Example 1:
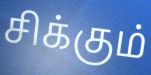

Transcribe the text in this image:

சிக்கும்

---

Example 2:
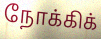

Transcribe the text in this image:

நோக்கிக்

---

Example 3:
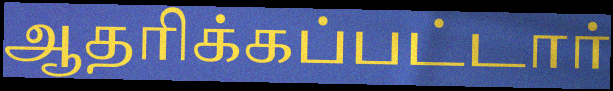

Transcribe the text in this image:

ஆதரிக்கப்பட்டார்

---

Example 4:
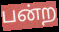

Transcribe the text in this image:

பன்ற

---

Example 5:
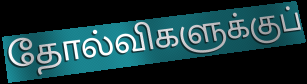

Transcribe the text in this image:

தோல்விகளுக்குப்